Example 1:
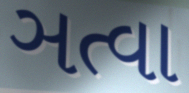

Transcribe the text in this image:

ઞત્વા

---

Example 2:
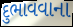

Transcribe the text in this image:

દુભાવવાના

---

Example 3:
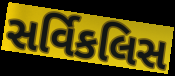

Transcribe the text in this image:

સર્વિકલિસ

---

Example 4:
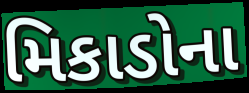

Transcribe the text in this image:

મિકાડોના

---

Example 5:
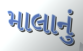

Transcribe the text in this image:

માલાનું